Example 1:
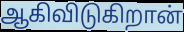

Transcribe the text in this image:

ஆகிவிடுகிறான்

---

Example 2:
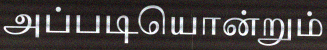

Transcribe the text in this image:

அப்படியொன்றும்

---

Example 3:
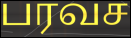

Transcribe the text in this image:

பரவச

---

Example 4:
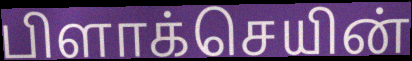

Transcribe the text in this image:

பிளாக்செயின்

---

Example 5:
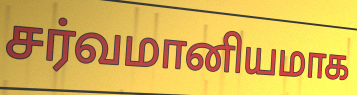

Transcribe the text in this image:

சர்வமானியமாக